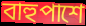
বাহুপাশে